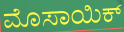
ಮೊಸಾಯಿಕ್